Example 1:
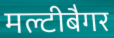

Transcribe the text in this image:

मल्‍टीबैगर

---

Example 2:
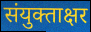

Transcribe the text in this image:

संयुक्ताक्षर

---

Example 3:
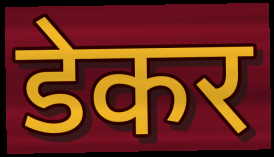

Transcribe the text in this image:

डेकर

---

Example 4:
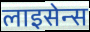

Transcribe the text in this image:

लाइसेन्स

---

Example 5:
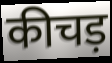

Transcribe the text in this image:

कीचड़